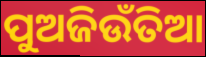
ପୁଅଜିଉଁତିଆ